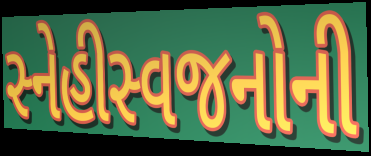
સ્નેહીસ્વજનોની